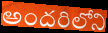
అందరిలోని